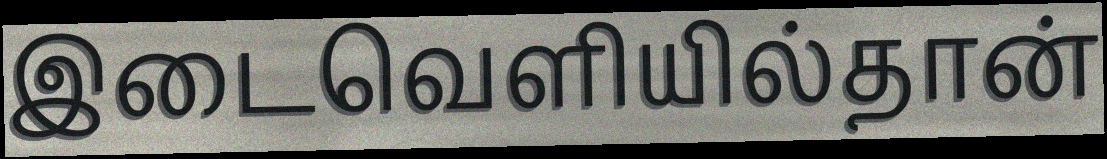
இடைவெளியில்தான்